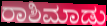
ರಾಶಿಮಾಡು